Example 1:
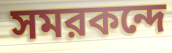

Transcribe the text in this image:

সমরকন্দে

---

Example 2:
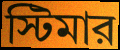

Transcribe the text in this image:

স্টিমার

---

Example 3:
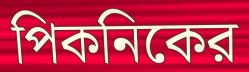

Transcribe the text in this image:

পিকনিকের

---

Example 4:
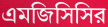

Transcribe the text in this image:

এমজিসিসির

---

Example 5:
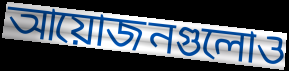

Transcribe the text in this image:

আয়োজনগুলোও